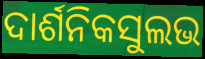
ଦାର୍ଶନିକସୁଲଭ